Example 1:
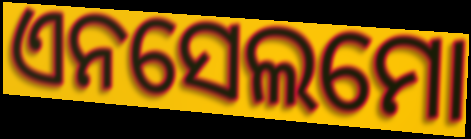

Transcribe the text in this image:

ଏନସେଲମୋ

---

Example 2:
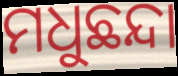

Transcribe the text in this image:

ମଧୁଛନ୍ଦା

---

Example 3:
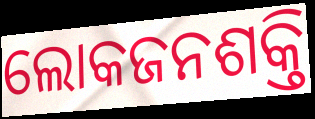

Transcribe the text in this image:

ଲୋକଜନଶକ୍ତି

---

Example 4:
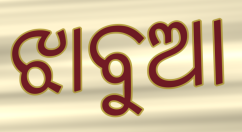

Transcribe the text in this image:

ଝାବୁଆ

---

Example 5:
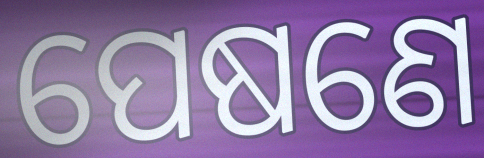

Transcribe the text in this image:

ପେଷଣେ